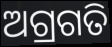
ଅଗ୍ରଗତି